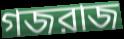
গজরাজ